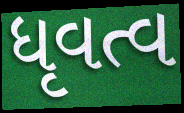
ધૃવત્વ